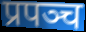
प्रपञ्च